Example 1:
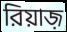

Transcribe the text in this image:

রিয়াজ়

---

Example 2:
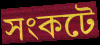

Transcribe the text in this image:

সংকটে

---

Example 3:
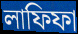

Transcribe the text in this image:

লাফিফা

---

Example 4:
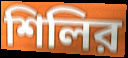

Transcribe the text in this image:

শিলির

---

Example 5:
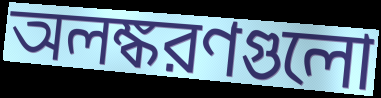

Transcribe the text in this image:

অলঙ্করণগুলো